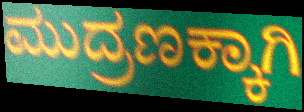
ಮುದ್ರಣಕ್ಕಾಗಿ